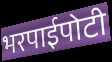
भरपाईपोटी